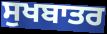
ਸੁਖਬਾਤਰ